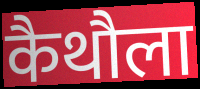
कैथौला